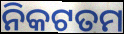
ନିକଟତମ